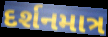
દર્શનમાત્ર